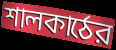
শালকাঠের